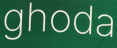
ghoda